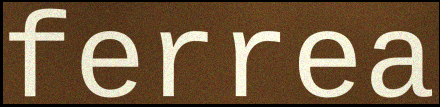
ferrea